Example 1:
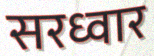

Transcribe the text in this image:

सरध्वार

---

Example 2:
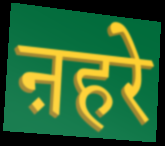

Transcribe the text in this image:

ऩहरे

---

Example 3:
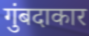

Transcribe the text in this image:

गुंबदाकार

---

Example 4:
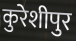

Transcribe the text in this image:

कुरेशीपुर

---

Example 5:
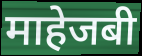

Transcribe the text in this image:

माहेजबी